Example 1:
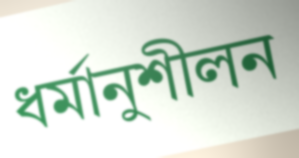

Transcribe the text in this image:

ধৰ্মানুশীলন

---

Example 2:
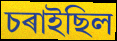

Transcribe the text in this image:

চৰাইছিল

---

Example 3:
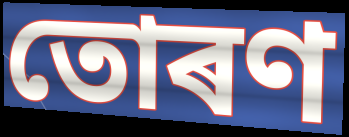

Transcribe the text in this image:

তোৰণ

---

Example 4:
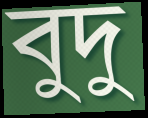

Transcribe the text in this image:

বুদু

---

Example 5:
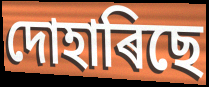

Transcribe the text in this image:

দোহাৰিছে